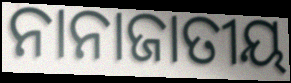
ନାନାଜାତୀୟ